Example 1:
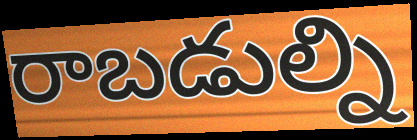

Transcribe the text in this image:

రాబడుల్ని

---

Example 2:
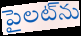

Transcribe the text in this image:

పైలట్‌ను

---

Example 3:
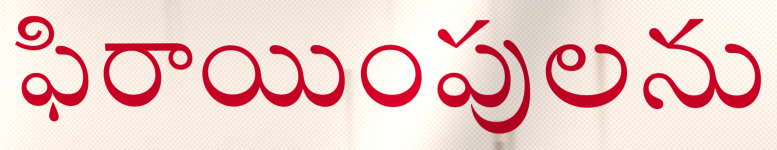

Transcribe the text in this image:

ఫిరాయింపులను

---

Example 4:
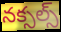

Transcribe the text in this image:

నక్సల్స్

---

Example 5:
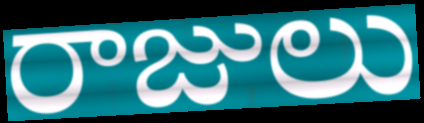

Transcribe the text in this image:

రాజులు